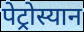
पेट्रोस्यान